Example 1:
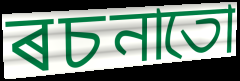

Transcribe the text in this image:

ৰচনাতো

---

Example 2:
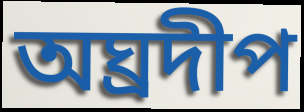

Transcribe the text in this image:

অঘ্ৰদীপ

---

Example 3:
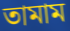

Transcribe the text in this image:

তামাম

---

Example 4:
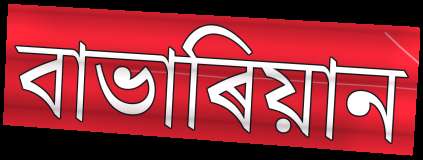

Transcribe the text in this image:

বাভাৰিয়ান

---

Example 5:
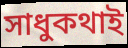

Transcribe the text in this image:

সাধুকথাই